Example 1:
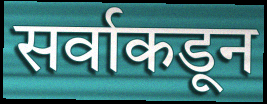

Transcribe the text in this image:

सर्वाकडून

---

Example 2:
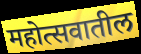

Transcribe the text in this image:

महोत्सवातील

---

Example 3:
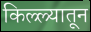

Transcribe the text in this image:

किल्ल्यातून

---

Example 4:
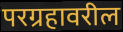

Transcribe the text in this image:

परग्रहावरील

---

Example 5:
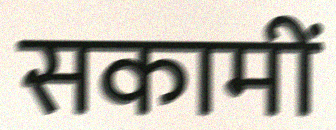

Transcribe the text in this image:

सकामीं